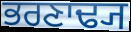
ਭਰਣਾਢ੍ਯ